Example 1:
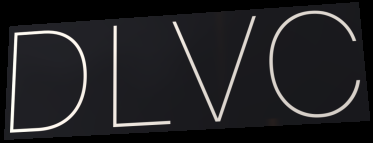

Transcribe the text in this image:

DLVC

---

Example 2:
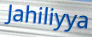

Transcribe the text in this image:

Jahiliyya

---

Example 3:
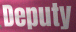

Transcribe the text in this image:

Deputy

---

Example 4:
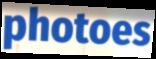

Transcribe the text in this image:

photoes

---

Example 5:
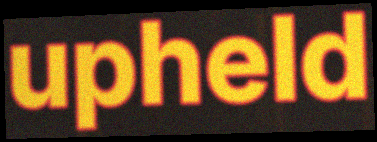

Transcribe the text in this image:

upheld